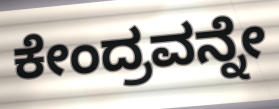
ಕೇಂದ್ರವನ್ನೇ